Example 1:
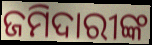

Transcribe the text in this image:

ଜମିଦାରୀଙ୍କ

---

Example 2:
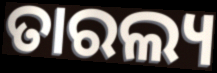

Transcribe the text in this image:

ତାରଲ୍ୟ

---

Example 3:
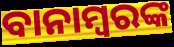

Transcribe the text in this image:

ବାନାମ୍ବରଙ୍କ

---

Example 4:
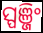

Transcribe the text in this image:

ସ୍ପଞ୍ଜିଂ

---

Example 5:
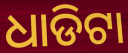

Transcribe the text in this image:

ଧାଡିଟା